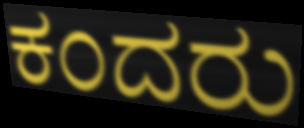
ಕಂದರು